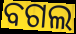
ବଗଲ